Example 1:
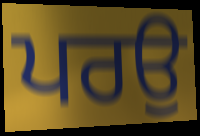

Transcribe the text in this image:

ਪਰਉ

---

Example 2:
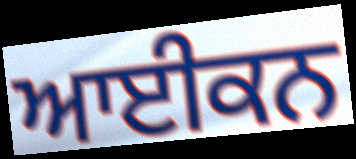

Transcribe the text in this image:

ਆਈਕਨ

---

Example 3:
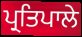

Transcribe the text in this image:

ਪ੍ਰਤਿਪਾਲੇ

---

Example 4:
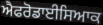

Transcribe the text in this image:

ਐਫਰੋਡਾਈਸਿਆਕ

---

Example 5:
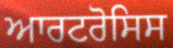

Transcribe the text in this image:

ਆਰਟਰੋਸਿਸ